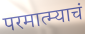
परमात्म्याचं